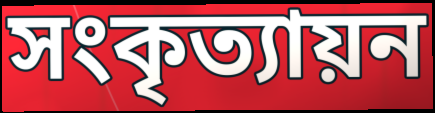
সংকৃত্যায়ন